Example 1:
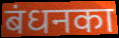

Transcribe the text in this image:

बंधनका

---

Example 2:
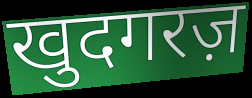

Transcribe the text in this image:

खुदगरज़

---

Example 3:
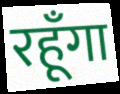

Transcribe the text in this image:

रहूँगा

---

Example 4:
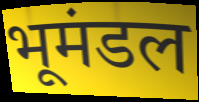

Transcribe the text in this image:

भूमंडल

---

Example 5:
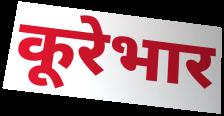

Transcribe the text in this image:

कूरेभार